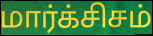
மார்க்சிசம்